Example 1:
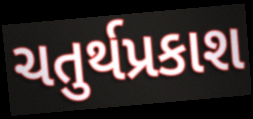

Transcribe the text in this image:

ચતુર્થપ્રકાશ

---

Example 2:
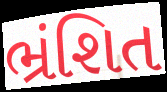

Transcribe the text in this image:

ભ્રંશિત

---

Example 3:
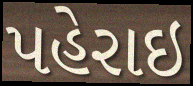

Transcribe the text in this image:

પહેરાઇ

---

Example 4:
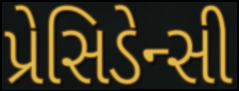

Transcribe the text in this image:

પ્રેસિડેન્સી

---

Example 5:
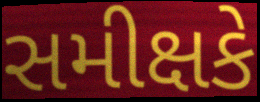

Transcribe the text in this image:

સમીક્ષકે